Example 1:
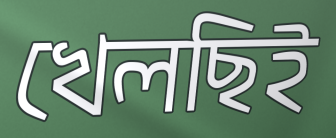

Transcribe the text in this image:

খেলছিই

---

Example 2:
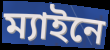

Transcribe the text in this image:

ম্যাইনে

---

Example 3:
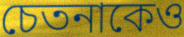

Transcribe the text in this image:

চেতনাকেও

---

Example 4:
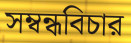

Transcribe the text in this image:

সম্বন্ধবিচার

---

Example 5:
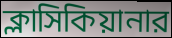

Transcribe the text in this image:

ক্লাসিকিয়ানার